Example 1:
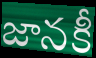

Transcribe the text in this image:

జానకీ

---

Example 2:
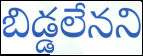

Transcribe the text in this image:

బిడ్డలేనని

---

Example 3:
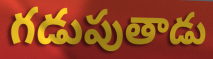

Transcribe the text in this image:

గడుపుతాడు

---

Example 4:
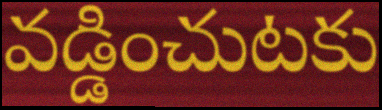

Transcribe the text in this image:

వడ్డించుటకు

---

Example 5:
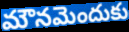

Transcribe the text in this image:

మౌనమెందుకు